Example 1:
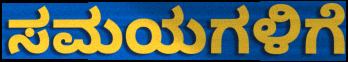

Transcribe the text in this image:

ಸಮಯಗಳಿಗೆ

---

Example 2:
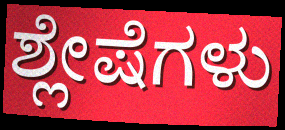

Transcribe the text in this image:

ಶ್ಲೇಷೆಗಳು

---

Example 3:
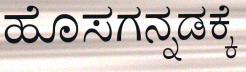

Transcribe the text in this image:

ಹೊಸಗನ್ನಡಕ್ಕೆ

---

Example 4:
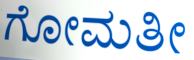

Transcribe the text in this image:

ಗೋಮತೀ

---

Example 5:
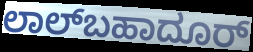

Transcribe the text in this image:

ಲಾಲ್‌ಬಹಾದೂರ್